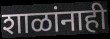
शाळांनाही